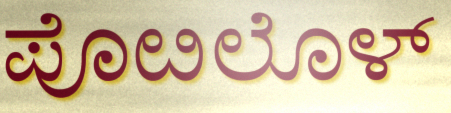
ಪೊೞಲೊಳ್